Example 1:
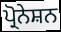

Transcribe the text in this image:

ਪ੍ਰੋਨੇਸ਼ਨ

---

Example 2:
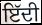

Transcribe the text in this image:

ਇੱਦੀ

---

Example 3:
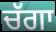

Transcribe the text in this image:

ਚੱਗਾ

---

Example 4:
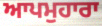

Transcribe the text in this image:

ਆਪਮੁਹਾਰਾ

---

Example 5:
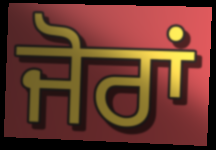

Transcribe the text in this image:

ਜੋਰਾਂ